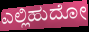
ಎಲ್ಲಿಹುದೋ